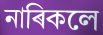
নাৰিকলে